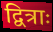
द्वित्राः